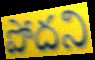
పోదని